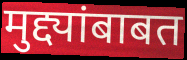
मुद्द्यांबाबत